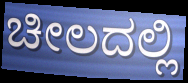
ಚೀಲದಲ್ಲಿ